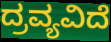
ದ್ರವ್ಯವಿದೆ